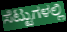
ಸೆಟ್ಟುಗಳಲ್ಲಿ